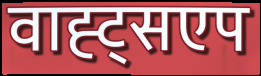
वाह्ट्सएप